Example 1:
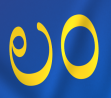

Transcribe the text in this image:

ಲಂ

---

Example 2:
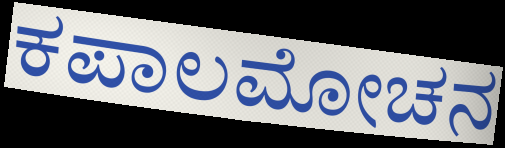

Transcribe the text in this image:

ಕಪಾಲಮೋಚನ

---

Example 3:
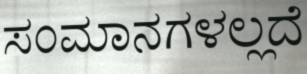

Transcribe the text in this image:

ಸಂಮಾನಗಳಲ್ಲದೆ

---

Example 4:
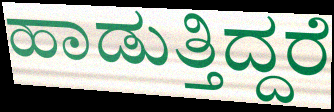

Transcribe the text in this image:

ಹಾಡುತ್ತಿದ್ದರೆ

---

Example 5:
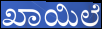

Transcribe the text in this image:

ಖಾಯಿಲೆ